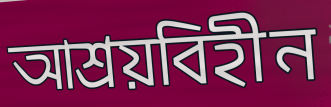
আশ্রয়বিহীন